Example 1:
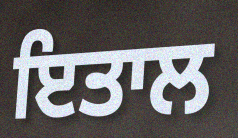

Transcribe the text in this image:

ਇਤਾਲ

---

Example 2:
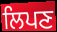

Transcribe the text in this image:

ਲਿਪਣ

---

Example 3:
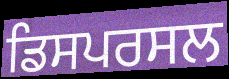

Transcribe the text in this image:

ਡਿਸਪਰਸਲ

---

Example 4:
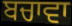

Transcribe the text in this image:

ਬਚਾਵਾ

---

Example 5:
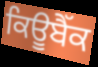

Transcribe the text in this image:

ਕਿਊਬੈੱਕ